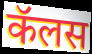
कॅलस